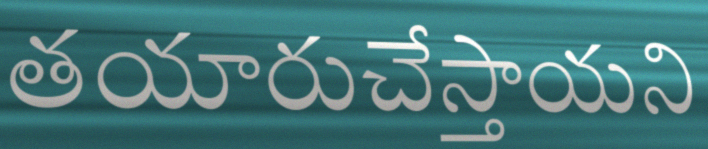
తయారుచేస్తాయని